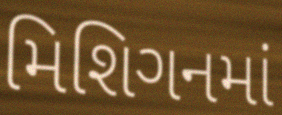
મિશિગનમાં